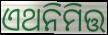
ଏଥନିମିତ୍ତ